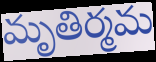
మృతిర్మమ